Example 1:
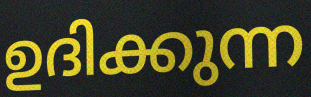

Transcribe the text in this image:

ഉദിക്കുന്ന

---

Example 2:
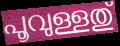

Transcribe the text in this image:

പൂവുള്ളതു്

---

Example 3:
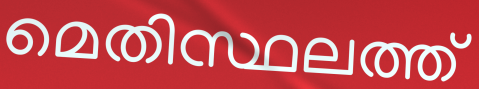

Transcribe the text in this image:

മെതിസ്ഥലത്ത്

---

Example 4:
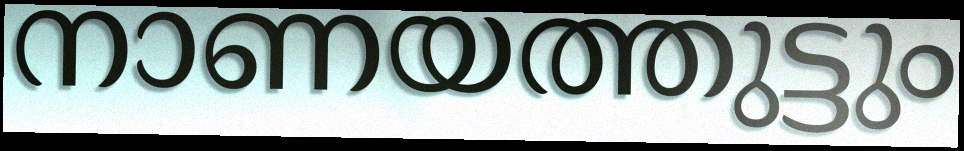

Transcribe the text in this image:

നാണയത്തുട്ടും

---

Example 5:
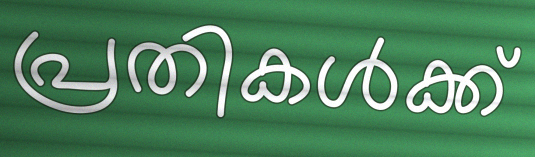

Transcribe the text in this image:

പ്രതികൾക്ക്